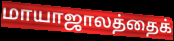
மாயாஜாலத்தைக்